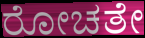
ರೋಚತೇ